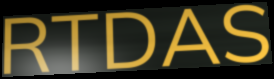
RTDAS